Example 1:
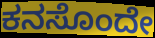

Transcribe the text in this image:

ಕನಸೊಂದೇ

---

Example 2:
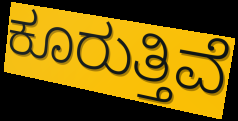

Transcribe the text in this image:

ಕೂರುತ್ತಿವೆ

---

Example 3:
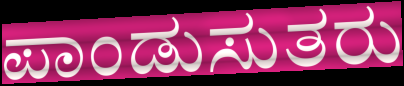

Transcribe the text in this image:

ಪಾಂಡುಸುತರು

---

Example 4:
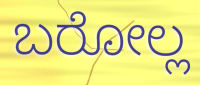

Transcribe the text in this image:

ಬರೋಲ್ಲ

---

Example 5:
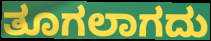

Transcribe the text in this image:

ತೂಗಲಾಗದು